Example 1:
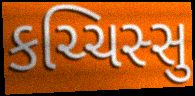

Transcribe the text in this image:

કચ્ચિસ્સુ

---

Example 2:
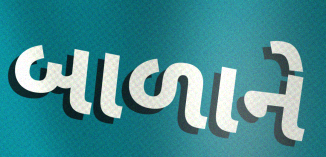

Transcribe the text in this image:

બાળાને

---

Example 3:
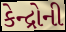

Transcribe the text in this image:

કેન્દ્રોની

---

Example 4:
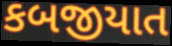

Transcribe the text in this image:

કબજીયાત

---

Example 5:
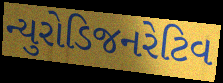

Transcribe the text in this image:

ન્યુરોડિજનરેટિવ